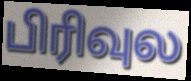
பிரிவுல